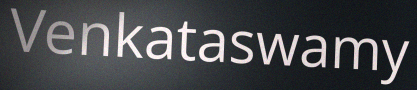
Venkataswamy